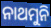
ନାଥମୁନି